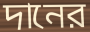
দানের